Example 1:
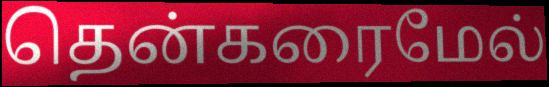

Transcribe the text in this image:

தென்கரைமேல்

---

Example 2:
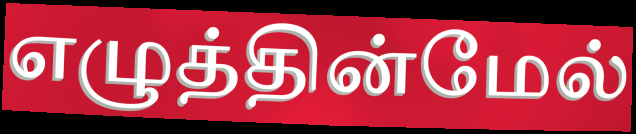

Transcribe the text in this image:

எழுத்தின்மேல்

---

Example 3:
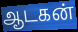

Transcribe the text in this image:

ஆடகன்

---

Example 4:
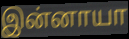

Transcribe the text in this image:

இன்னாயா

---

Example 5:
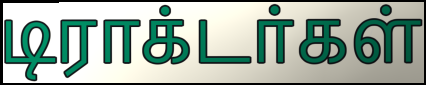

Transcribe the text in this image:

டிராக்டர்கள்